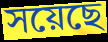
সয়েছে